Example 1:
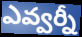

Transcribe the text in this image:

ఎవ్వర్నీ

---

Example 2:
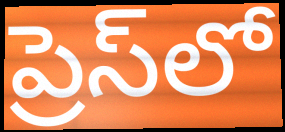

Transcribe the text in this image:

ప్రెస్‌లో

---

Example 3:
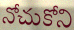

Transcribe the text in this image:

నోచుకోని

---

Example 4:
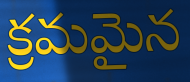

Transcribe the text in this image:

క్రమమైన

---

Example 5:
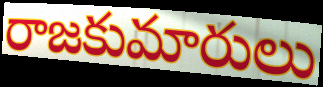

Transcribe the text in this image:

రాజకుమారులు